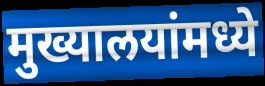
मुख्यालयांमध्ये